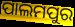
ପାଲମପୁର